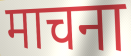
माचना